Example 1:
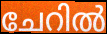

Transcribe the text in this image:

ചേറിൽ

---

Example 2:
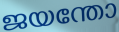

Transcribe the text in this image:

ജയന്തോ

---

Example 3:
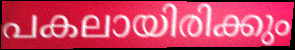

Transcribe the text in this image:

പകലായിരിക്കും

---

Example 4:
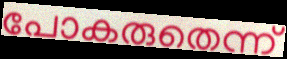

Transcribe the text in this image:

പോകരുതെന്ന്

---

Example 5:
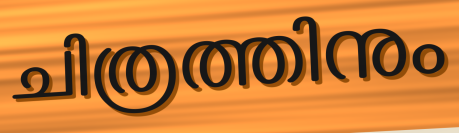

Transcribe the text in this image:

ചിത്രത്തിനും